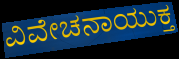
ವಿವೇಚನಾಯುಕ್ತ